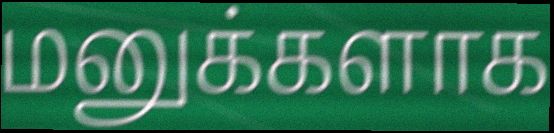
மனுக்களாக